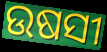
ଉଷସୀ